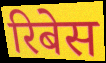
रिबेस